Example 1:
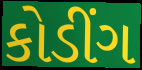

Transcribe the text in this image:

કોડીંગ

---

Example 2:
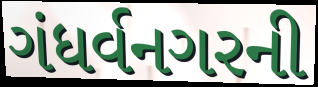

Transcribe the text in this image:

ગંધર્વનગરની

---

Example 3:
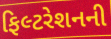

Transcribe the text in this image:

ફિલ્ટરેશનની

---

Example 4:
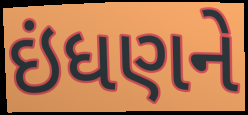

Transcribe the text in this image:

ઇંધણને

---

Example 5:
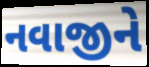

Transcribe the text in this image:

નવાજીને